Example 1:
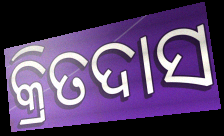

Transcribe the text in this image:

କ୍ରିତଦାସ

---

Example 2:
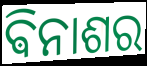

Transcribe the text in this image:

ଵିନାଶର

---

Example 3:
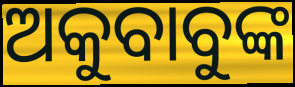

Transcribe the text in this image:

ଅକୁବାବୁଙ୍କ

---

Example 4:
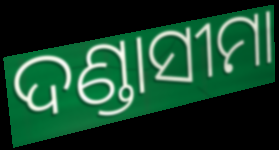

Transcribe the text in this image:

ଦଣ୍ଡାସୀମା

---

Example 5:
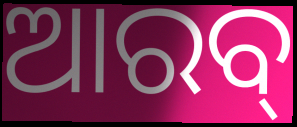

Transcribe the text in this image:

ଆରବ୍